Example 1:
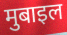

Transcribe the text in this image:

मुबाइल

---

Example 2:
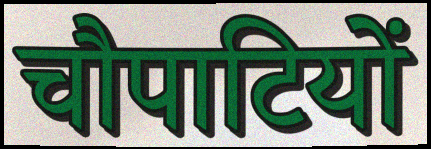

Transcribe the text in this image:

चौपाटियों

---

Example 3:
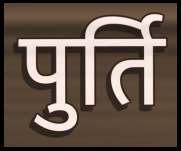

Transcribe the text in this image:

पुर्ति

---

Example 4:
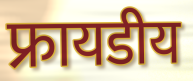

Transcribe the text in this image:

फ्रायडीय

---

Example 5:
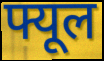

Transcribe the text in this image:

फ्यूल